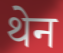
थेन